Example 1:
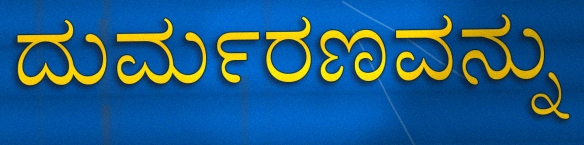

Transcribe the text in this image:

ದುರ್ಮರಣವನ್ನು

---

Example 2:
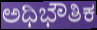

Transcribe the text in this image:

ಅಧಿಭೌತಿಕ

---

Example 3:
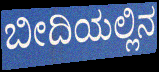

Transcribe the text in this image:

ಬೀದಿಯಲ್ಲಿನ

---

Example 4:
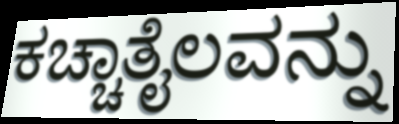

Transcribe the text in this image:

ಕಚ್ಚಾತೈಲವನ್ನು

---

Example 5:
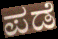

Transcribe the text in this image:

ಪಡೆ